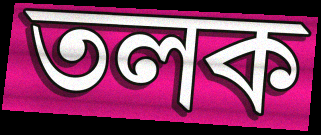
তলক